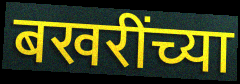
बखरींच्या